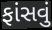
ફાંસવું